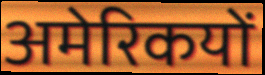
अमेरिकयों